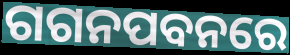
ଗଗନପବନରେ